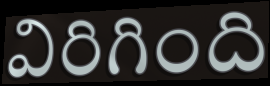
విరిగింది